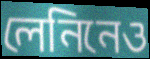
লেনিনেও